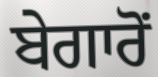
ਬੇਗਾਰੋਂ